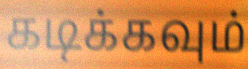
கடிக்கவும்